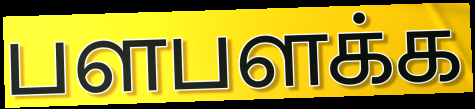
பளபளக்க